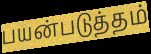
பயன்படுத்தம்